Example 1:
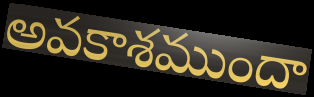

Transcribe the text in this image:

అవకాశముందా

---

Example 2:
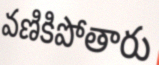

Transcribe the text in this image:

వణికిపోతారు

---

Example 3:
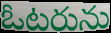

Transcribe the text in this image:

ఓటరును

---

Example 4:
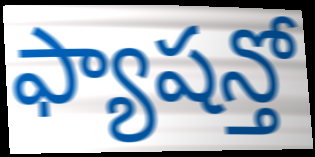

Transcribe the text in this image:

ఫ్యాషన్తో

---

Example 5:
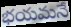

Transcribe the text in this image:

భయమనే